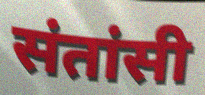
संतांसी